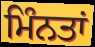
ਮਿੰਨਤਾਂ